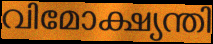
വിമോക്ഷ്യന്തി